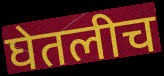
घेतलीच